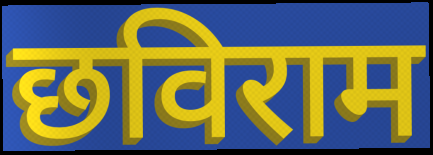
छविराम